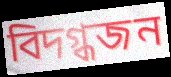
বিদগ্ধজন